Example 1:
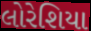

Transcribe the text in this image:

લોરેશિયા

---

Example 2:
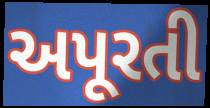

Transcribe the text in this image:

અપૂરતી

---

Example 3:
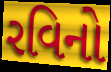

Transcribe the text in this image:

રવિનો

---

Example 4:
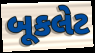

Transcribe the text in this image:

બૂકલેટ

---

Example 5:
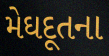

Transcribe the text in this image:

મેઘદૂતના